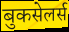
बुकसेलर्स